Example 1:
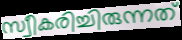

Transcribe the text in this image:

സ്വീകരിച്ചിരുന്നത്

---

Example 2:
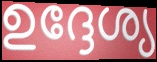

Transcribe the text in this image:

ഉദ്ദേശ്യ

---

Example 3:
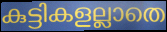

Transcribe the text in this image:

കുട്ടികളല്ലാതെ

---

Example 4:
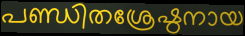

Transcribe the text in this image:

പണ്ഡിതശ്രേഷ്ഠനായ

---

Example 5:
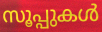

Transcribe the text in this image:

സൂപ്പുകൾ